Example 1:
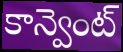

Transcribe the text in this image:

కాన్వెంట్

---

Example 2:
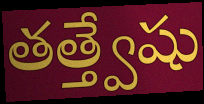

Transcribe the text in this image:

తత్త్వేషు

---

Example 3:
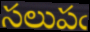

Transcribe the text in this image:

సలుపఁ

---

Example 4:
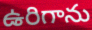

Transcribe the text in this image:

ఉరిగాను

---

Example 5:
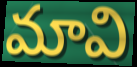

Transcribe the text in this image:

మావి